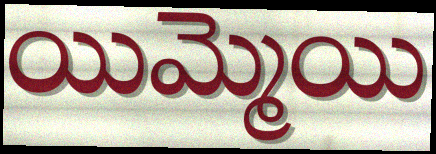
యిమ్మెయి